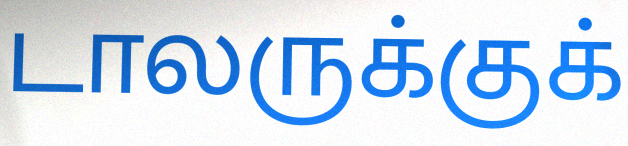
டாலருக்குக்